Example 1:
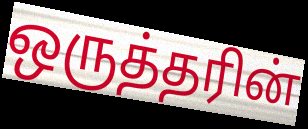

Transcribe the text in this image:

ஒருத்தரின்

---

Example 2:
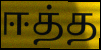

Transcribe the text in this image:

ஈத்த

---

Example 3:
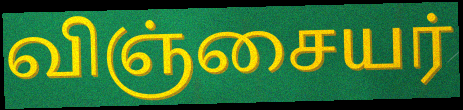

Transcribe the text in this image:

விஞ்சையர்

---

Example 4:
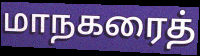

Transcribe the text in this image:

மாநகரைத்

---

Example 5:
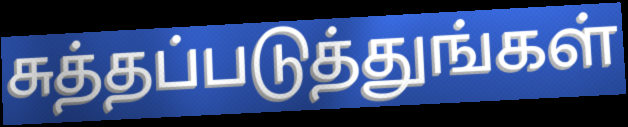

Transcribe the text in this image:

சுத்தப்படுத்துங்கள்